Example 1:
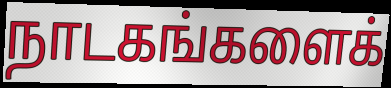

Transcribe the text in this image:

நாடகங்களைக்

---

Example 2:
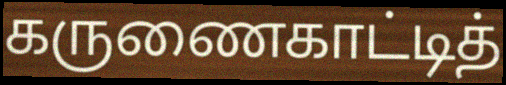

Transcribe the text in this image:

கருணைகாட்டித்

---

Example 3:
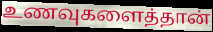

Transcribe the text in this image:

உணவுகளைத்தான்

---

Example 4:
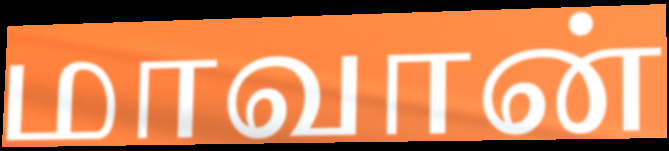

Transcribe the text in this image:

மாவான்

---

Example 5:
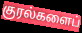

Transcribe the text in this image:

குரல்களைப்